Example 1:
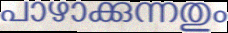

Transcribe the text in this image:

പാഴാക്കുന്നതും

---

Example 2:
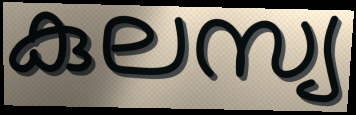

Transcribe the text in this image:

കുലസ്യ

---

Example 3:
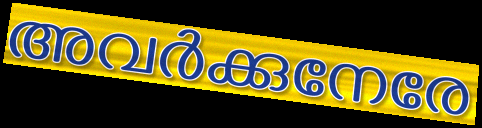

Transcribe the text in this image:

അവർക്കുനേരേ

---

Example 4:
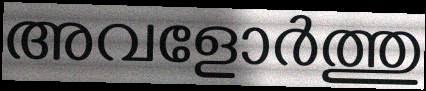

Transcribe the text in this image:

അവളോർത്തു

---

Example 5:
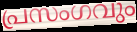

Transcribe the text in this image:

പ്രസംഗവും